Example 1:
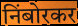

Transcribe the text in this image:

निंबोरकर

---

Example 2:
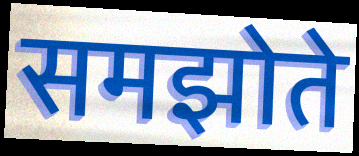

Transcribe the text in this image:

समझोते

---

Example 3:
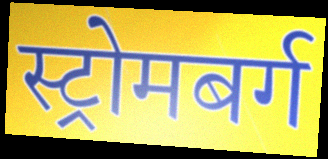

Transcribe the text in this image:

स्ट्रोमबर्ग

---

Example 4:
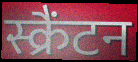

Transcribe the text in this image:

स्क्रैंटन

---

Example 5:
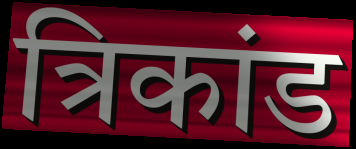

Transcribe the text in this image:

त्रिकांड